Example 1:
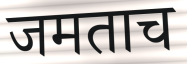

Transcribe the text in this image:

जमताच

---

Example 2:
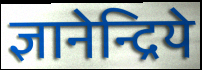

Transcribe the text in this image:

ज्ञानेन्द्रिये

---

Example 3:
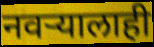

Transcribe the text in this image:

नवऱ्यालाही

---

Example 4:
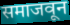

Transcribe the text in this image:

समाजवून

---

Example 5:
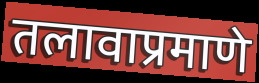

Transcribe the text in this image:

तलावाप्रमाणे